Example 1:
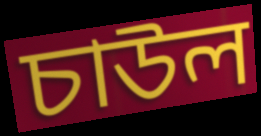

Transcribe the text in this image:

চাউল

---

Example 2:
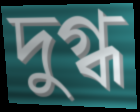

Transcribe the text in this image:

দুগ্ধ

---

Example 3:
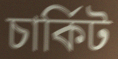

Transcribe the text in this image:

চাৰ্কিট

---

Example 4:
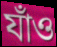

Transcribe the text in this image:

যাঁও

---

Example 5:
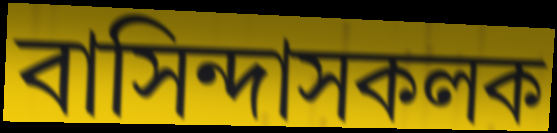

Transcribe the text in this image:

বাসিন্দাসকলক